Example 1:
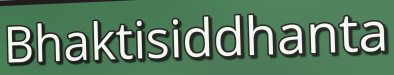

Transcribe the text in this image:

Bhaktisiddhanta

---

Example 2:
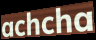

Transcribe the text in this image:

achcha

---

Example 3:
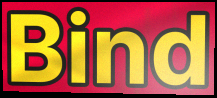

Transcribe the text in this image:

Bind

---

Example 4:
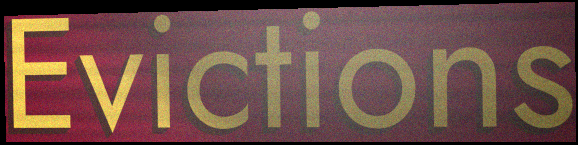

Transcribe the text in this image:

Evictions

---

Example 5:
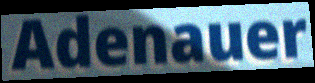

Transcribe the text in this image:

Adenauer